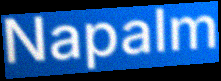
Napalm